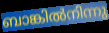
ബാങ്കിൽനിന്നു